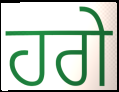
ਹਗੇ